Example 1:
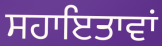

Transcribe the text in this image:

ਸਹਾਇਤਾਵਾਂ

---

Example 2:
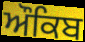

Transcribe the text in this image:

ਔਕਿਬ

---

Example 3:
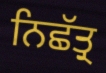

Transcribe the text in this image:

ਨਿਛੱਤ੍ਰ੍ਰ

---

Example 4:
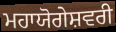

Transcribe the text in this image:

ਮਹਾਯੋਗੇਸ਼ਵਰੀ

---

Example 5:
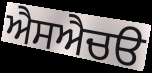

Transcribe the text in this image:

ਐਸਐਚੳ